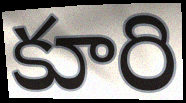
కూరి